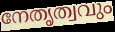
നേതൃത്വവും